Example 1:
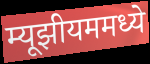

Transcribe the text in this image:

म्यूझीयममध्ये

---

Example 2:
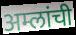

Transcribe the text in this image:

अम्‍लांची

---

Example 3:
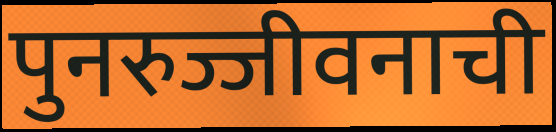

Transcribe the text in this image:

पुनरुज्जीवनाची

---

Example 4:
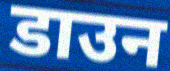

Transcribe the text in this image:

डाउन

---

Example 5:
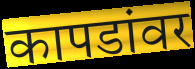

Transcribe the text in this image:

कापडांवर